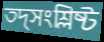
তদ্‌সংশ্লিষ্ট